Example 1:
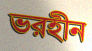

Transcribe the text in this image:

ভরহীন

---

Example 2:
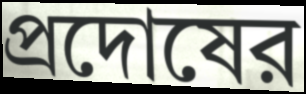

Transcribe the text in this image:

প্রদোষের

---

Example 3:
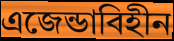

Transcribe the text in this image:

এজেন্ডাবিহীন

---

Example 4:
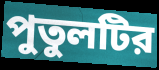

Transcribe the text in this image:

পুতুলটির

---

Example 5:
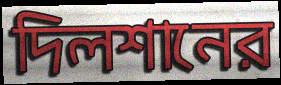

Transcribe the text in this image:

দিলশানের